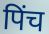
पिंच